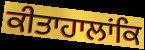
ਕੀਤਾਹਾਲਾਂਕਿ